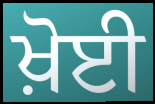
ਖ਼ੋਈ